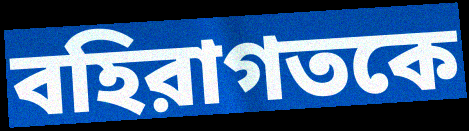
বহিরাগতকে